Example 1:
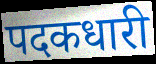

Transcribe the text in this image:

पदकधारी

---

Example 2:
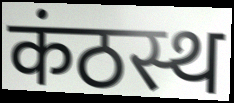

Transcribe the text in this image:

कंठस्थ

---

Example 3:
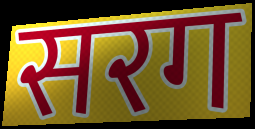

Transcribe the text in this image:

सरग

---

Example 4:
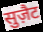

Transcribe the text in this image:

सुज़ैट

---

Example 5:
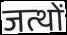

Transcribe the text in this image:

जत्थों